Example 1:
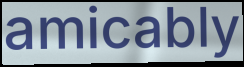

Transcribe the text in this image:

amicably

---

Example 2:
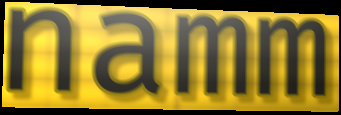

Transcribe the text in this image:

namm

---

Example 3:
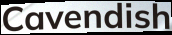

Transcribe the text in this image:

Cavendish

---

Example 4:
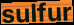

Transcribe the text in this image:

sulfur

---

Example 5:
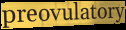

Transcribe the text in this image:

preovulatory